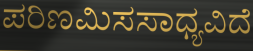
ಪರಿಣಮಿಸಸಾಧ್ಯವಿದೆ